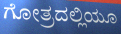
ಗೋತ್ರದಲ್ಲಿಯೂ